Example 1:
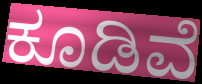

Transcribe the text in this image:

ಕೂಡಿವೆ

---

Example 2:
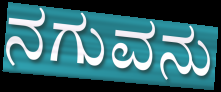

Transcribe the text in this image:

ನಗುವನು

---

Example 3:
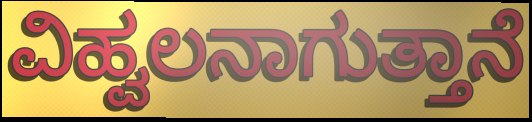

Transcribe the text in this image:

ವಿಹ್ವಲನಾಗುತ್ತಾನೆ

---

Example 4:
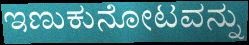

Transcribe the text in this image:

ಇಣುಕುನೋಟವನ್ನು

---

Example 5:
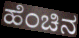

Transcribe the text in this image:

ಹೆಂಚಿನ